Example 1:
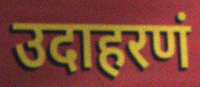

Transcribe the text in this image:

उदाहरणं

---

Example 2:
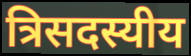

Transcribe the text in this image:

त्रिसदस्यीय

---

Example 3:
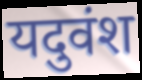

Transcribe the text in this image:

यदुवंश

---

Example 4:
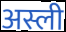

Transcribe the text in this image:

अस्ली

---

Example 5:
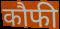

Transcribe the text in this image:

कौफी